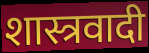
शास्त्रवादी